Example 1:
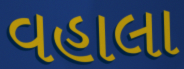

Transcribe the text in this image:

વહાલા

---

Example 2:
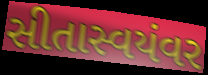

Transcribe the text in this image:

સીતાસ્વયંવર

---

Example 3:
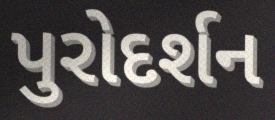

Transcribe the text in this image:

પુરોદર્શન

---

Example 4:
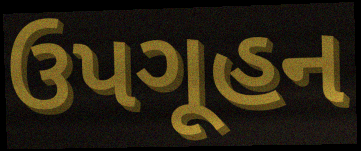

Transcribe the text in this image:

ઉપગૂહન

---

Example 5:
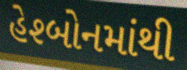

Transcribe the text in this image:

હેશ્બોનમાંથી